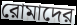
রোমাদের